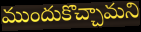
ముందుకొచ్చామని